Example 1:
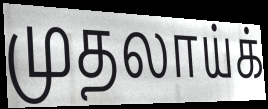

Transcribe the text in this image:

முதலாய்க்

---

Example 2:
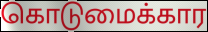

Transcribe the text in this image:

கொடுமைக்கார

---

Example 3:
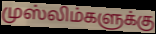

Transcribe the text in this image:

முஸ்லிம்களுக்கு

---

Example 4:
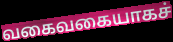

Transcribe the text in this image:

வகைவகையாகச்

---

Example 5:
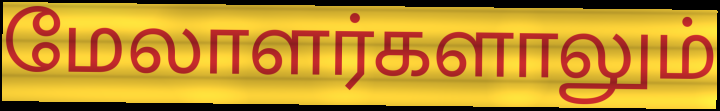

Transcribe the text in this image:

மேலாளர்களாலும்